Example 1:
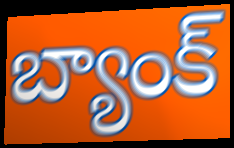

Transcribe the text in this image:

బ్యాంక్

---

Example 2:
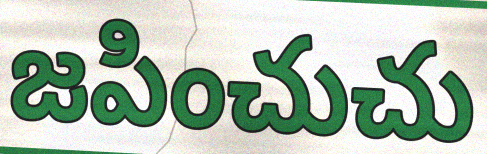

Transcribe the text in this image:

జపించుచు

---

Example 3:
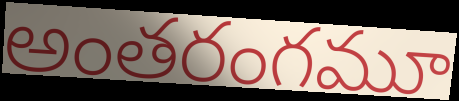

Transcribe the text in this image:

అంతరంగమూ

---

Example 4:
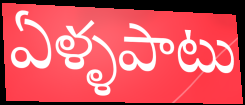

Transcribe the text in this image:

ఏళ్ళపాటు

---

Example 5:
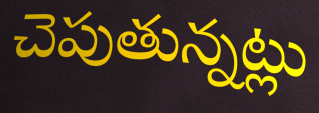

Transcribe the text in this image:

చెపుతున్నట్లు